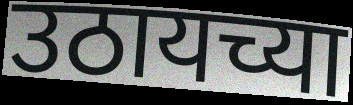
उठायच्या